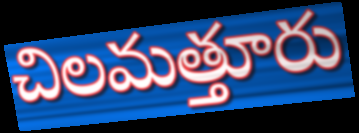
చిలమత్తూరు